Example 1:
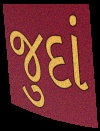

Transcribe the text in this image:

જુદાં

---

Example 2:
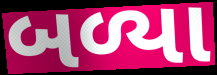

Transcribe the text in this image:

બળ્યા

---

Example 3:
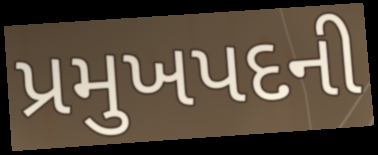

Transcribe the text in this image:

પ્રમુખપદની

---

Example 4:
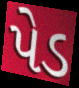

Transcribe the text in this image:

પેડ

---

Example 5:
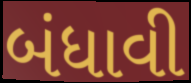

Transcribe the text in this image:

બંધાવી